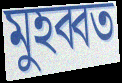
মুহব্বত